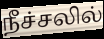
நீச்சலில்